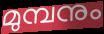
മുമ്പനും